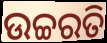
ଉଚ୍ଚରତି